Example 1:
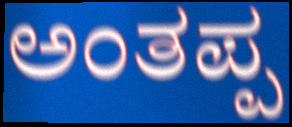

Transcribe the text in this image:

ಅಂತಪ್ಪ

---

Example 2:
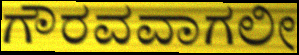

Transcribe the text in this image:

ಗೌರವವಾಗಲೀ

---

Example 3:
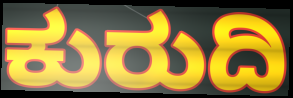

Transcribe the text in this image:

ಕುರುದಿ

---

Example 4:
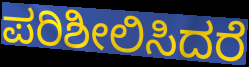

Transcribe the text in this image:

ಪರಿಶೀಲಿಸಿದರೆ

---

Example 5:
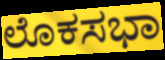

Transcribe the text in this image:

ಲೊಕಸಭಾ